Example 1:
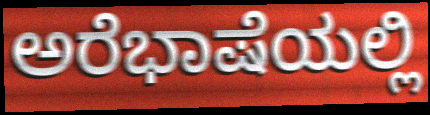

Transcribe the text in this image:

ಅರೆಭಾಷೆಯಲ್ಲಿ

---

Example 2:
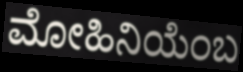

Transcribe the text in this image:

ಮೋಹಿನಿಯೆಂಬ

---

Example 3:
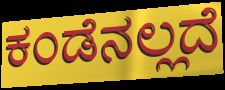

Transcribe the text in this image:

ಕಂಡೆನಲ್ಲದೆ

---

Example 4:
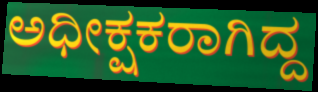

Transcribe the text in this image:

ಅಧೀಕ್ಷಕರಾಗಿದ್ದ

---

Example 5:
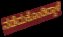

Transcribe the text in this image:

ನಡೆದುಕೊಂಡಿದ್ದಾಳೆ